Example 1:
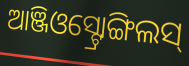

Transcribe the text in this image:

ଆଞ୍ଜିଓସ୍ଟ୍ରୋଙ୍ଗିଲସ୍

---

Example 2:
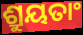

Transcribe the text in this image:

ଶ୍ରୁୟତାଂ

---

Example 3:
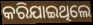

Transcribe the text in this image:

କରିଯାଇଥିଲେ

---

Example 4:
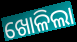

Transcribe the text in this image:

ଖୋଳିଲା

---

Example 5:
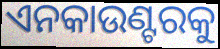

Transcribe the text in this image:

ଏନକାଉଣ୍ଟରକୁ